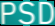
PSD